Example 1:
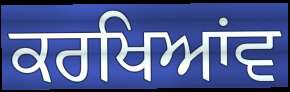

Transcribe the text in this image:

ਕਰਖਿਆਂਵ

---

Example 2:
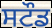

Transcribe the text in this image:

ਸਟੌਡ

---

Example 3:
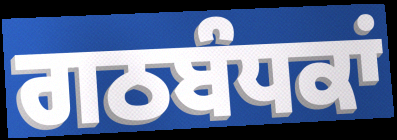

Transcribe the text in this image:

ਗਠਬੰਧਕਾਂ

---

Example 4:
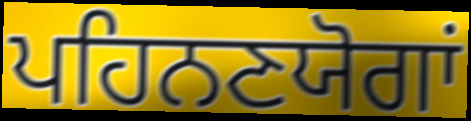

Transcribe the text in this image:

ਪਹਿਨਣਯੋਗਾਂ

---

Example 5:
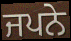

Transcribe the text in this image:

ਜਪਨੇ